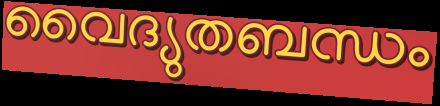
വൈദ്യുതബന്ധം